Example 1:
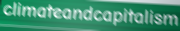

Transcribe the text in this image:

climateandcapitalism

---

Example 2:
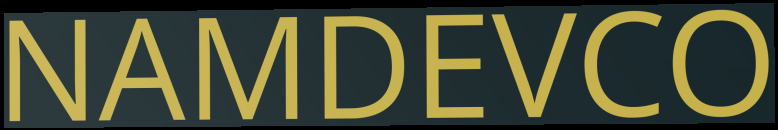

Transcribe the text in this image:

NAMDEVCO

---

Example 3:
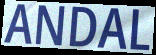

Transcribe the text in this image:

ANDAL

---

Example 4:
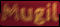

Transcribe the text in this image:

Mugil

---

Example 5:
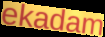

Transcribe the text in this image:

ekadam